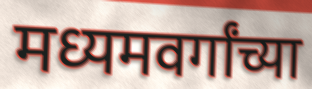
मध्यमवर्गांच्या